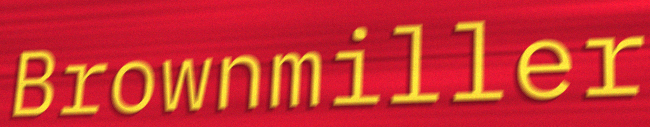
Brownmiller